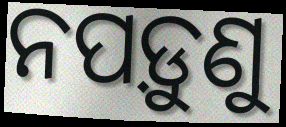
ନପଡ଼ୁଣୁ